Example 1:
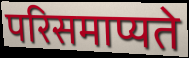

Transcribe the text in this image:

परिसमाप्यते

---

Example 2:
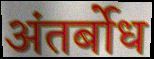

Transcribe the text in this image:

अंतर्बोध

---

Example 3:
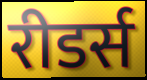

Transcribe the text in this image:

रीडर्स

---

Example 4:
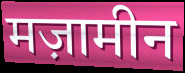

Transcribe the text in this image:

मज़ामीन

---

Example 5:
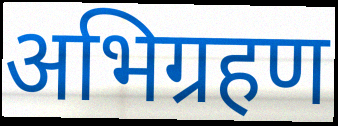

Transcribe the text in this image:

अभिग्रहण